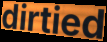
dirtied